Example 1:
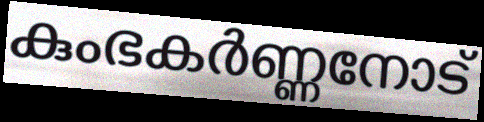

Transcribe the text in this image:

കുംഭകർണ്ണനോട്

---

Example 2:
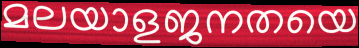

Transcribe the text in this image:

മലയാളജനതയെ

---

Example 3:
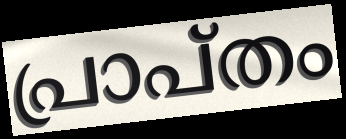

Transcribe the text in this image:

പ്രാപ്തം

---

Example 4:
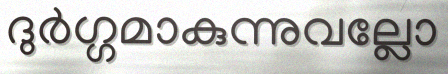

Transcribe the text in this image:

ദുർഗ്ഗമാകുന്നുവല്ലോ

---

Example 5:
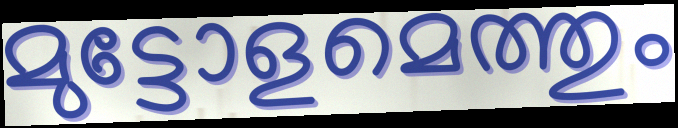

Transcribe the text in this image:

മുട്ടോളമെത്തും